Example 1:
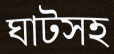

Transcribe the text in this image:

ঘাটসহ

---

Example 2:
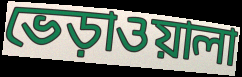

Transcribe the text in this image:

ভেড়াওয়ালা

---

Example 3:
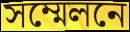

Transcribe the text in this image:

সম্মেলনে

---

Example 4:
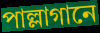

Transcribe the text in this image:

পাল্লাগানে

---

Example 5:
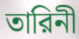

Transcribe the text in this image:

তারিনী